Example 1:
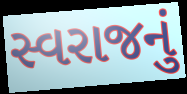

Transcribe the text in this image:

સ્વરાજનું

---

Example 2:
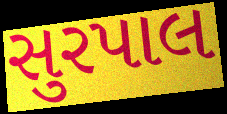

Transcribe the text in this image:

સુરપાલ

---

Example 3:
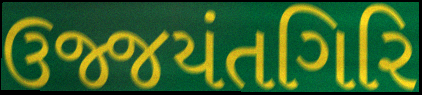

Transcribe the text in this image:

ઉજ્જયંતગિરિ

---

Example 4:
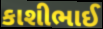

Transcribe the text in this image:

કાશીભાઈ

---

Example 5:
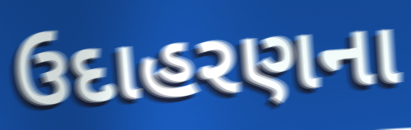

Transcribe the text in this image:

ઉદાહરણના